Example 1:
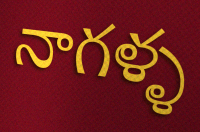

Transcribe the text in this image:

నాగళ్ళ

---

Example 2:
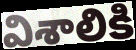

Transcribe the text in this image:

విశాలికి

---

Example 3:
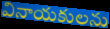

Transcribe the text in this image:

వినాయకులను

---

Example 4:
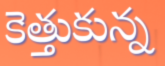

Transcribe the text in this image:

కెత్తుకున్న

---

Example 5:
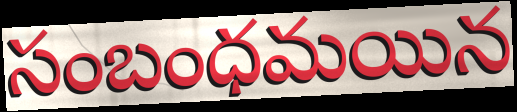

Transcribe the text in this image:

సంబంధమయిన